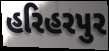
હરિહરપુર